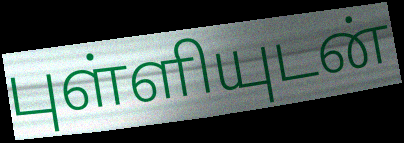
புள்ளியுடன்